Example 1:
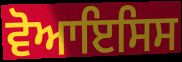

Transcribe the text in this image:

ਵੋਆਇਸਿਸ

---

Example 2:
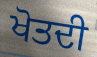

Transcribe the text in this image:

ਖੋਤਦੀ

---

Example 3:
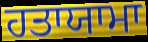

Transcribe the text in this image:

ਹਤਾਯਾਮਾ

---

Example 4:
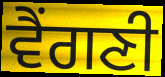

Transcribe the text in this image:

ਵੈਂਗਣੀ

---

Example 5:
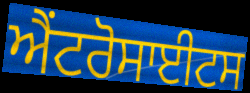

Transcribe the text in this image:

ਐਂਟਰੋਸਾਈਟਸ